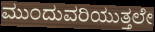
ಮುಂದುವರಿಯುತ್ತಲೇ